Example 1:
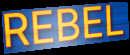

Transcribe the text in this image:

REBEL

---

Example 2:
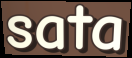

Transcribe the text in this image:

sata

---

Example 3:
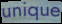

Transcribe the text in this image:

unique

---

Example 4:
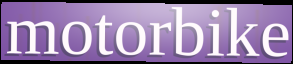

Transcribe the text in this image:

motorbike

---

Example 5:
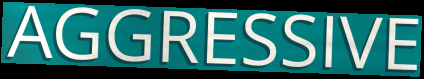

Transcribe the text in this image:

AGGRESSIVE